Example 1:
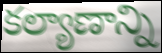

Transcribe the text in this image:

కల్యాణాన్ని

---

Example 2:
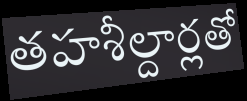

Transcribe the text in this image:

తహశీల్దార్లతో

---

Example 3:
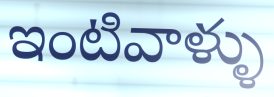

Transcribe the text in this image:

ఇంటివాళ్ళు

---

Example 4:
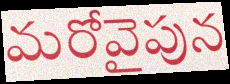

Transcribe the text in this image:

మరోవైపున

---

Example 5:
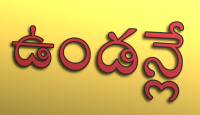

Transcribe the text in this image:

ఉండన్లే